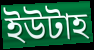
ইউটাহ